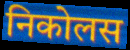
निकोलस